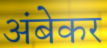
अंबेकर